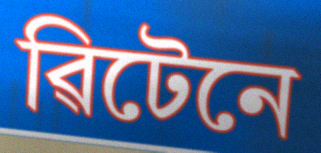
ৱিটেনে